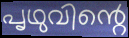
പൃഥുവിന്റെ